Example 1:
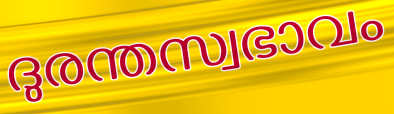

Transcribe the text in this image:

ദുരന്തസ്വഭാവം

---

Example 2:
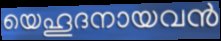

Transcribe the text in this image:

യെഹൂദനായവൻ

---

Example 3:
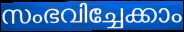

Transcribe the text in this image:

സംഭവിച്ചേക്കാം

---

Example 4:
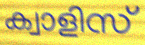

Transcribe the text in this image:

ക്വാളിസ്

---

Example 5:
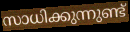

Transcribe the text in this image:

സാധിക്കുന്നുണ്ട്